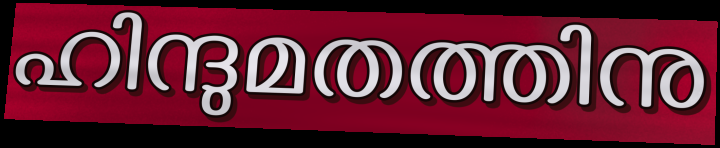
ഹിന്ദുമതത്തിനു